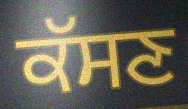
ਕੱਸਣ